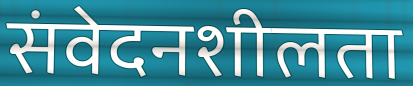
संवेदनशीलता